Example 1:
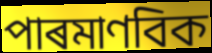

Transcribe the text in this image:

পাৰমাণবিক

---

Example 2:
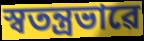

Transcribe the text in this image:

স্বতন্ত্ৰভাৱে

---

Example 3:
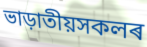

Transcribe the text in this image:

ভাড়াতীয়সকলৰ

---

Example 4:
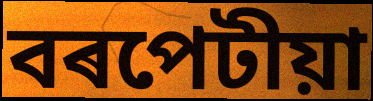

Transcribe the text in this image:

বৰপেটীয়া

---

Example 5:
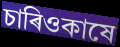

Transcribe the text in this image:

চাৰিওকাষে